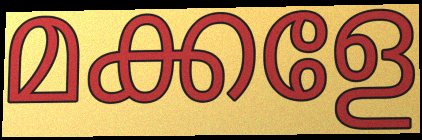
മക്കളേ